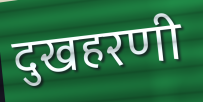
दुखहरणी